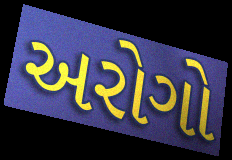
અરોગો